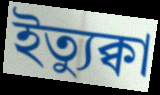
ইত্যুক্বা